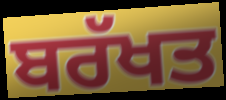
ਬਰੱਖਤ